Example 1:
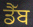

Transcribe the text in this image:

ਡੈੱਬ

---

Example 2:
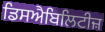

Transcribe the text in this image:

ਡਿਸਐਬਿਲਿਟੀਜ਼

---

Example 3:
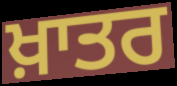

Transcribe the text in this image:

ਖ਼ਾਤਰ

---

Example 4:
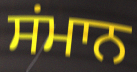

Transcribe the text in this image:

ਸਂਮਾਨ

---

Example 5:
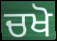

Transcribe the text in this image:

ਚਖੋ